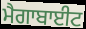
ਮੈਗਾਬਾਈਟ